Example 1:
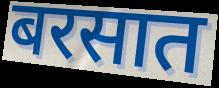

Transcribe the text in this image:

बरसात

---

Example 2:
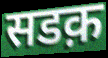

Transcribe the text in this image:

सडक़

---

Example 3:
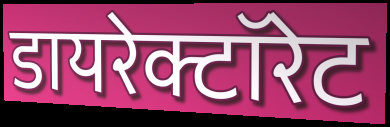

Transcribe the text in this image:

डायरेक्टॉरेट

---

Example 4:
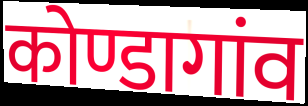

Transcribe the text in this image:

कोण्डागांव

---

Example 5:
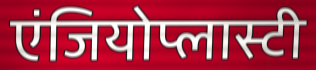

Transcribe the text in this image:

एंजियोप्लास्टी